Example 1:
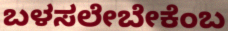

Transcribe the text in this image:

ಬಳಸಲೇಬೇಕೆಂಬ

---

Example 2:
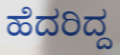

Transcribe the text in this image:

ಹೆದರಿದ್ದ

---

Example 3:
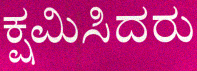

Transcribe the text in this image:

ಕ್ಷಮಿಸಿದರು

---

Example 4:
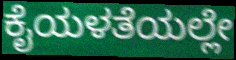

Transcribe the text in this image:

ಕೈಯಳತೆಯಲ್ಲೇ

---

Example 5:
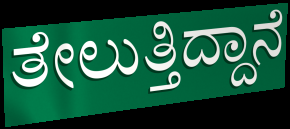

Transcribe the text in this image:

ತೇಲುತ್ತಿದ್ದಾನೆ